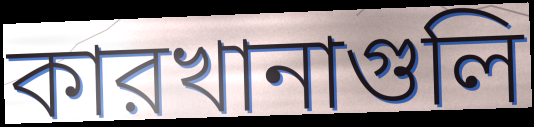
কারখানাগুলি